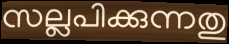
സല്ലപിക്കുന്നതു